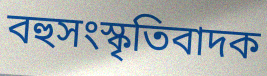
বহুসংস্কৃতিবাদক